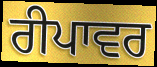
ਰੀਪਾਵਰ